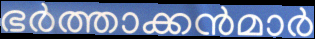
ഭർത്താക്കൻമാർ